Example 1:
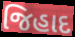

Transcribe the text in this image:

જિહાદ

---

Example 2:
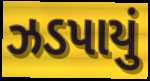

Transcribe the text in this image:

ઝડપાયું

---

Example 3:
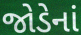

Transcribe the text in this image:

જોડેનાં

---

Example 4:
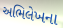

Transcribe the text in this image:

અભિલેખના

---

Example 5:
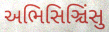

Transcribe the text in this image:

અભિસિઞ્ચિંસુ